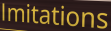
Imitations